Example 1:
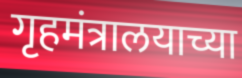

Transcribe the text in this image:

गृहमंत्रालयाच्या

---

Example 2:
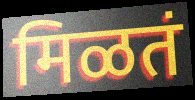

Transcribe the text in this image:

मिळतं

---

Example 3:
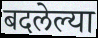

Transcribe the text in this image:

बदलेल्या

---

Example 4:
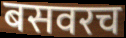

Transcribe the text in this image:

बसवरच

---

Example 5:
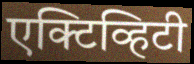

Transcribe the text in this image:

एक्टिव्हिटी